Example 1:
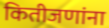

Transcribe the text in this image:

कितीजणांना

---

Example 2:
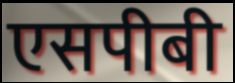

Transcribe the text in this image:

एसपीबी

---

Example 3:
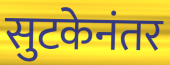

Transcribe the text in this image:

सुटकेनंतर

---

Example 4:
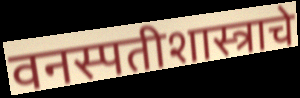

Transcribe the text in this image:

वनस्पतीशास्त्राचे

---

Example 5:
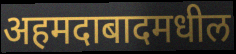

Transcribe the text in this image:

अहमदाबादमधील